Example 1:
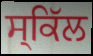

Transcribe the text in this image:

ਸ੍ਕਿੱਲ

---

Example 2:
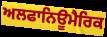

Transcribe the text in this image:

ਅਲਫਾਨਿਊਮੈਰਿਕ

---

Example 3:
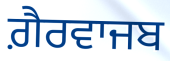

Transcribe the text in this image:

ਗ਼ੈਰਵਾਜਬ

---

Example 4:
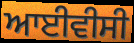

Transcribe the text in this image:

ਆਈਵੀਸੀ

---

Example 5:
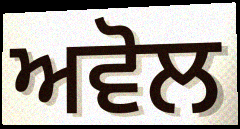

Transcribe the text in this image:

ਅਵੋਲ